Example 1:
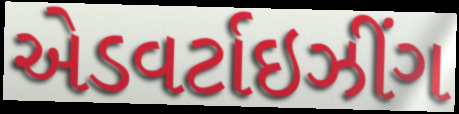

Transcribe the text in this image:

એડવર્ટાઇઝીંગ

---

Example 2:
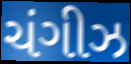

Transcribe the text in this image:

ચંગીઝ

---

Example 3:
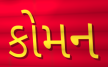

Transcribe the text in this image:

કોમન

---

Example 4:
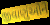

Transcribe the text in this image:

જીવાણુંઓને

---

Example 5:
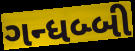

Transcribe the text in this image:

ગન્ધબ્બી